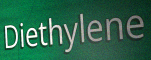
Diethylene